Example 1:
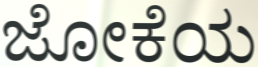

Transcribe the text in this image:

ಜೋಕೆಯ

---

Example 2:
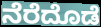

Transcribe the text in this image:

ನೆರೆದೊಡೆ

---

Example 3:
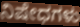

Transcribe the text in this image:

ನಿಷೇಧಗಳು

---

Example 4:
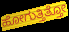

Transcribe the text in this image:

ಹೋಗುತ್ತಿತ್ತೋ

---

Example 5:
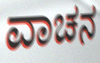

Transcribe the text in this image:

ವಾಚನ